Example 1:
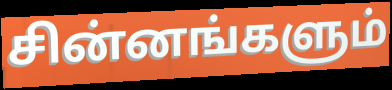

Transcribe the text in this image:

சின்னங்களும்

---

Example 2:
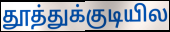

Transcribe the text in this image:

தூத்துக்குடியில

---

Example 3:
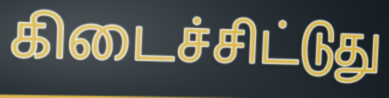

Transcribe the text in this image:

கிடைச்சிட்டுது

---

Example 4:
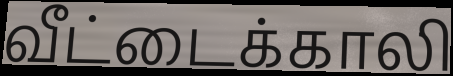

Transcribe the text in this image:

வீட்டைக்காலி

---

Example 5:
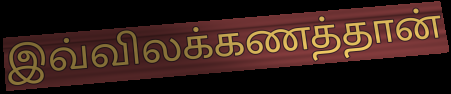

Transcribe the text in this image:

இவ்விலக்கணத்தான்